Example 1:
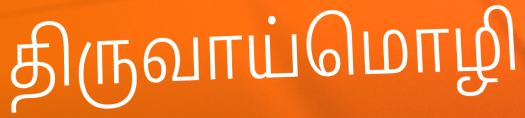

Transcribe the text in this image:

திருவாய்மொழி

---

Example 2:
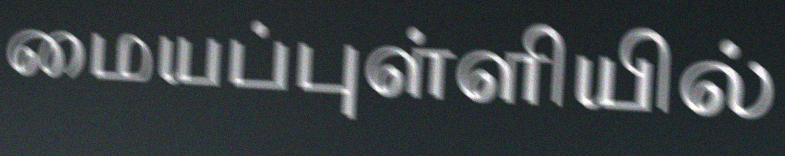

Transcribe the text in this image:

மையப்புள்ளியில்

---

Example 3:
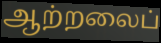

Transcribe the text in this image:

ஆற்றலைப்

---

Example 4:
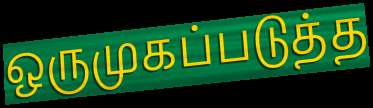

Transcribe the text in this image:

ஒருமுகப்படுத்த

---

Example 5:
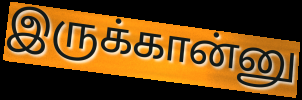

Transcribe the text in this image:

இருக்கான்னு